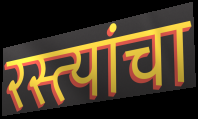
रस्त्यांचा